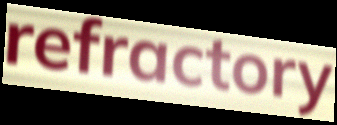
refractory